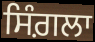
ਸਿੰਗ਼ਲਾ